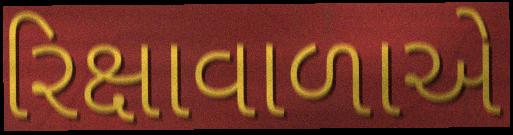
રિક્ષાવાળાએ